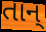
તાન્